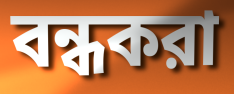
বন্ধকরা